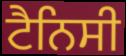
ਟੈਨਿਸੀ